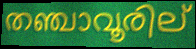
തഞ്ചാവൂരില്